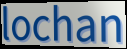
lochan